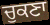
ਚੁਕਣਾ